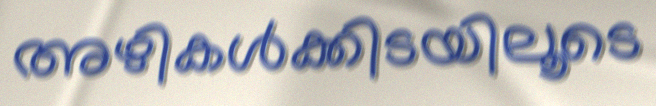
അഴികൾക്കിടയിലൂടെ